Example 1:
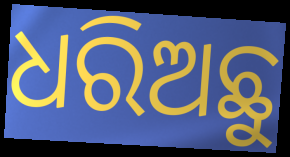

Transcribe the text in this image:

ଧରିଅଛୁ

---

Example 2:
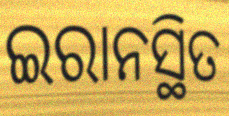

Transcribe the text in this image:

ଇରାନସ୍ଥିତ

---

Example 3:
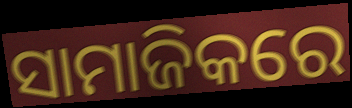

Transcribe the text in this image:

ସାମାଜିକରେ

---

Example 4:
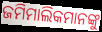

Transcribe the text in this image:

ଜମିମାଲିକମାନଙ୍କୁ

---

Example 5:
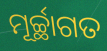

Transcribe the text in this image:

ମୂର୍ଚ୍ଛାଗତ